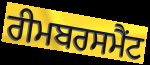
ਰੀਮਬਰਸਮੈਂਟ